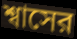
শ্বাসের